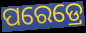
ପରେଡ୍ରେ